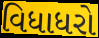
વિધાધરો